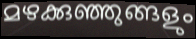
മഴക്കുഞ്ഞുങ്ങളും